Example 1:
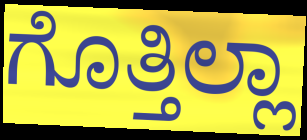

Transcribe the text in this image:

ಗೊತ್ತಿಲ್ಲಾ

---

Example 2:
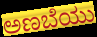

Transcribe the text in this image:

ಅಣಬೆಯು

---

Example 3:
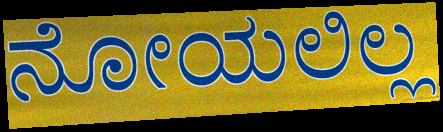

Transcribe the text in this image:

ನೋಯಲಿಲ್ಲ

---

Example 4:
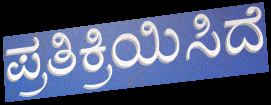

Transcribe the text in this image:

ಪ್ರತಿಕ್ರಿಯಿಸಿದೆ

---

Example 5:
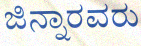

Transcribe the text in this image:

ಜಿನ್ನಾರವರು